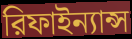
রিফাইন্যান্স